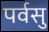
पर्वसु